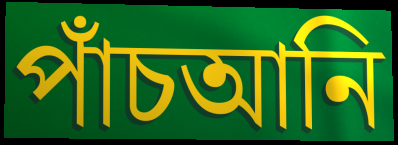
পাঁচআনি